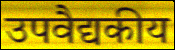
उपवैद्यकीय